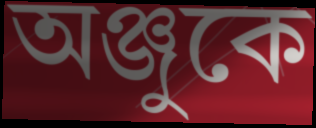
অঞ্জুকে